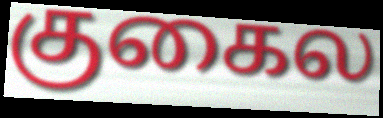
குகைல